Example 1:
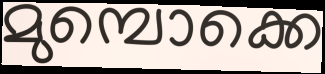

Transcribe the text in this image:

മുമ്പൊക്കെ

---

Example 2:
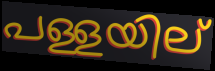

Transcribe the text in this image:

പള്ളയില്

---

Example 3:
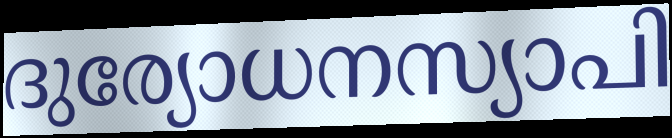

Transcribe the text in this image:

ദുര്യോധനസ്യാപി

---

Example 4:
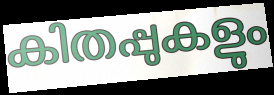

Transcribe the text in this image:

കിതപ്പുകളും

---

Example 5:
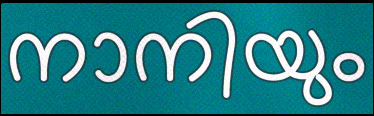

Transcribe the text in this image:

നാനിയും